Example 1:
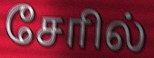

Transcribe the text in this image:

சேரில்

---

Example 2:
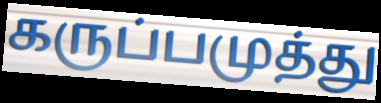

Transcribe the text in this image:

கருப்பமுத்து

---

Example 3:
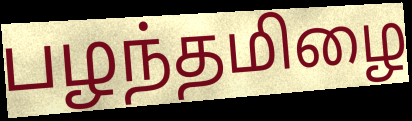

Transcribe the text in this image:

பழந்தமிழை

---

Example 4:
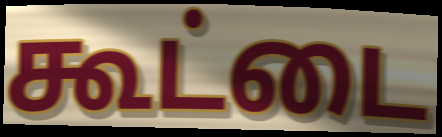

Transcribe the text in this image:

கூட்டை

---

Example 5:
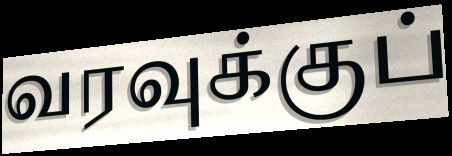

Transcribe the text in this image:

வரவுக்குப்